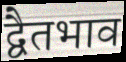
द्वैतभाव